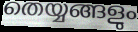
തെയ്യങ്ങളും